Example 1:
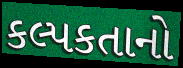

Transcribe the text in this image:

કલ્પકતાનો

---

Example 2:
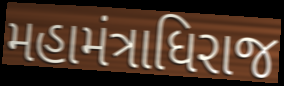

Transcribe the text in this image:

મહામંત્રાધિરાજ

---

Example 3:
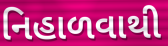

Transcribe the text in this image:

નિહાળવાથી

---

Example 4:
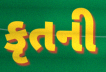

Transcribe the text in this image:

કૃતની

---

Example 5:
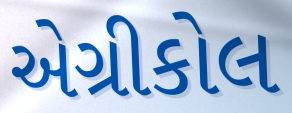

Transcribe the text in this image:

એગ્રીકોલ